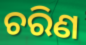
ଚରିଣ